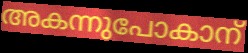
അകന്നുപോകാന്